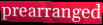
prearranged